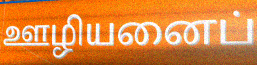
ஊழியனைப்